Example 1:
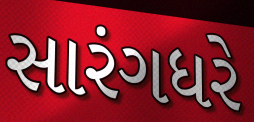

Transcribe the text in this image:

સારંગધરે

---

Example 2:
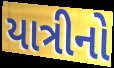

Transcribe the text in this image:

યાત્રીનો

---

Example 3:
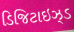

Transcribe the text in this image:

ડિજિટાઇઝ્ડ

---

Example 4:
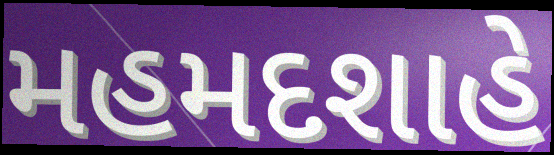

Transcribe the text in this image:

મહમદશાહે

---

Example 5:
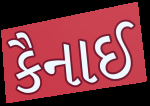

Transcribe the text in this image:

કૈનાઈ